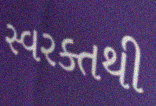
સ્વરક્તથી